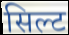
सिल्ट